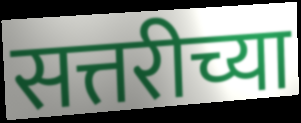
सत्तरीच्या